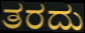
ತರದು